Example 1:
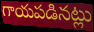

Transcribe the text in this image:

గాయపడినట్లు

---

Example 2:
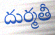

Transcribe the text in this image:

దుర్మతీ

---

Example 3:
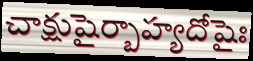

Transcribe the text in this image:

చాక్షుషైర్బాహ్యదోషైః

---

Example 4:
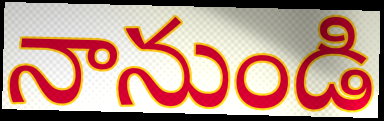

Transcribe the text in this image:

నానుండి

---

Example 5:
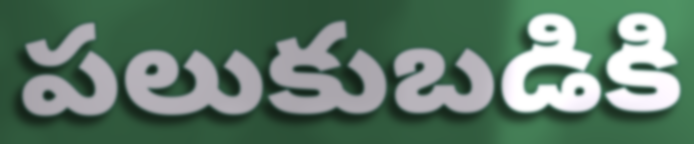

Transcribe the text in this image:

పలుకుబడికి